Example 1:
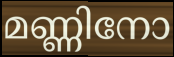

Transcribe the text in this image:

മണ്ണിനോ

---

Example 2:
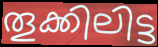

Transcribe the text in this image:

തൂക്കിലിട്ട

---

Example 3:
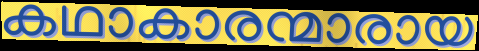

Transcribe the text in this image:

കഥാകാരന്മാരായ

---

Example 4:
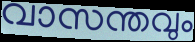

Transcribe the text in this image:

വാസന്തവും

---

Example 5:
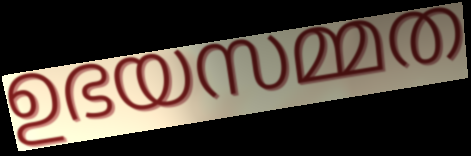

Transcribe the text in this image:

ഉഭയസമ്മത